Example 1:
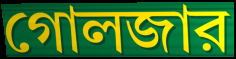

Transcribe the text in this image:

গোলজার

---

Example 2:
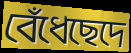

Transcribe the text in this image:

বেঁধেছেদে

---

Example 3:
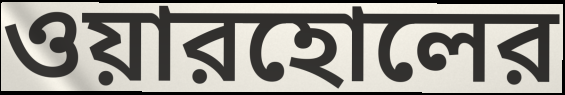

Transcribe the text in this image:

ওয়ারহোলের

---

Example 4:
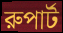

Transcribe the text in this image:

রুপার্ট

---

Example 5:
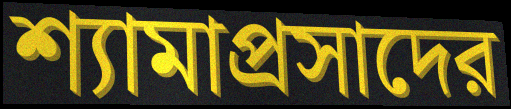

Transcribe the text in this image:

শ্যামাপ্রসাদের